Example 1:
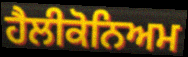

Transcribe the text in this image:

ਹੈਲੀਕੋਨਿਅਮ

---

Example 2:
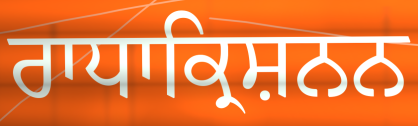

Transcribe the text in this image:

ਰਾਧਾਕ੍ਰਿਸ਼ਨਨ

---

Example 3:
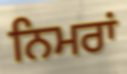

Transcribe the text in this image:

ਨਿਮਰਾਂ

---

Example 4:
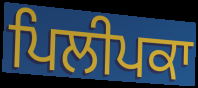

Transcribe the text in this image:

ਪਿਲੀਪਕਾ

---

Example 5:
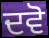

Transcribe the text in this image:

ਦਵੋ